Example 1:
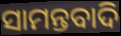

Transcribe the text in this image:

ସାମନ୍ତବାଦି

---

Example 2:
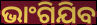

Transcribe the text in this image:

ଭାଂଗିଯିବ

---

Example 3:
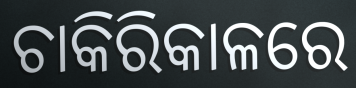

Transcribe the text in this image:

ଚାକିରିକାଳରେ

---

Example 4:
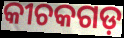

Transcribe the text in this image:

କୀଚକଗଡ଼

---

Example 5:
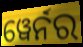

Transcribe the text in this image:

ୱେର୍ନର